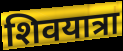
शिवयात्रा